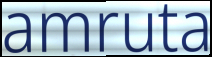
amruta